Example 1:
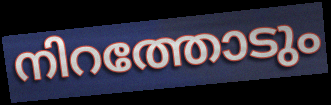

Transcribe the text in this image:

നിറത്തോടും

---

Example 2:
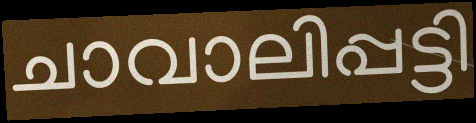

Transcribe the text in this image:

ചാവാലിപ്പട്ടി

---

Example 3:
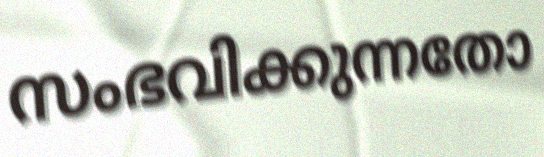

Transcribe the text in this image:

സംഭവിക്കുന്നതോ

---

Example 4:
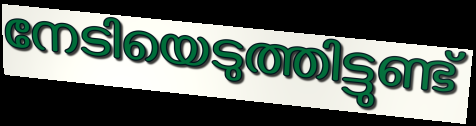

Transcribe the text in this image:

നേടിയെടുത്തിട്ടുണ്ട്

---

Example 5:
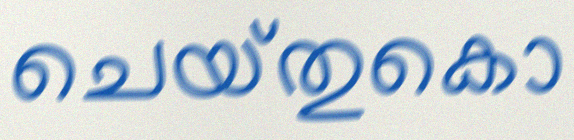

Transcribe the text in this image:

ചെയ്‌തുകൊ